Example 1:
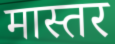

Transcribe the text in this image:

मास्तर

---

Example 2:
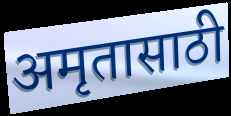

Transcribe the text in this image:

अमृतासाठी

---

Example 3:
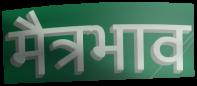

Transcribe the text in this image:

मैत्रभाव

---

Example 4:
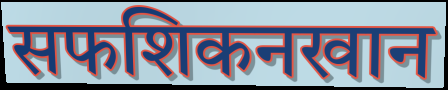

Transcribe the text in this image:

सफशिकनखान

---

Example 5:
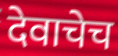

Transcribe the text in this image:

देवाचेच